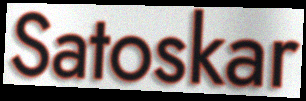
Satoskar